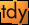
tdy